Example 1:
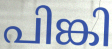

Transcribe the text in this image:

പിങ്കി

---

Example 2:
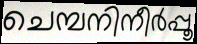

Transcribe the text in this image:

ചെമ്പനിനീർപ്പൂ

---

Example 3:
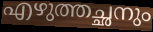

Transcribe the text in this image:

എഴുത്തച്ഛനും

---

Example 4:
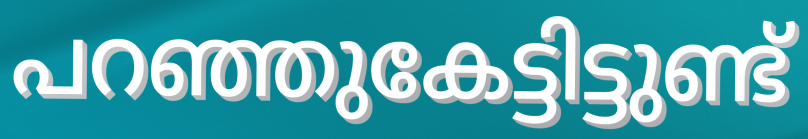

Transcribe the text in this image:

പറഞ്ഞുകേട്ടിട്ടുണ്ട്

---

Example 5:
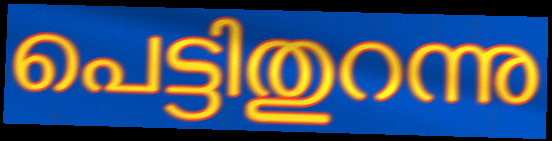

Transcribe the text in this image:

പെട്ടിതുറന്നു